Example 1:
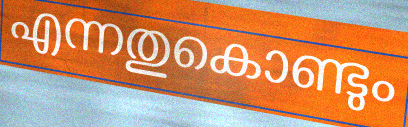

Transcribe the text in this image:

എന്നതുകൊണ്ടും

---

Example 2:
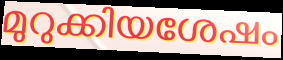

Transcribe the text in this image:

മുറുക്കിയശേഷം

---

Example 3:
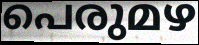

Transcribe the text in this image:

പെരുമഴ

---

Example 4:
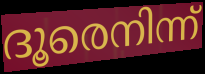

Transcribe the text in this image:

ദൂരെനിന്ന്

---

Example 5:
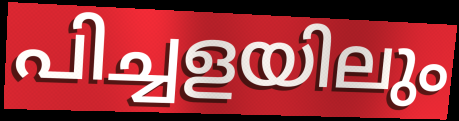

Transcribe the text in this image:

പിച്ചളയിലും